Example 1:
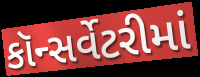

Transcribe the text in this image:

કૉન્સર્વેટરીમાં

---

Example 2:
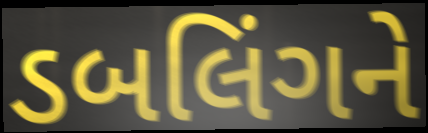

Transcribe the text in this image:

ડબલિંગને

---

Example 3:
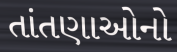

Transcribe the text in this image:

તાંતણાઓનો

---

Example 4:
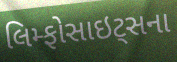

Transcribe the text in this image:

લિમ્ફોસાઇટ્સના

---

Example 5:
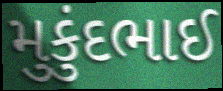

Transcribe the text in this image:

મુકુંદભાઈ